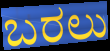
ಬರಲು